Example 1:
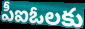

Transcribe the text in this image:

పీఐఓలకు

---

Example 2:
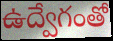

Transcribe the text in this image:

ఉద్వేగంతో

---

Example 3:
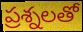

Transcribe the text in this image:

ప్రశ్నలతో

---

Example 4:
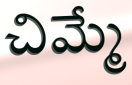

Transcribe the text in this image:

చిమ్మే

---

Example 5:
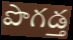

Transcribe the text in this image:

పొగడ్త